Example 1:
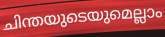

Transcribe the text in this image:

ചിന്തയുടെയുമെല്ലാം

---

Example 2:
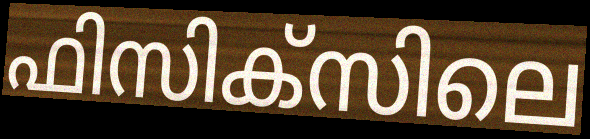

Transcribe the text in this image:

ഫിസിക്സിലെ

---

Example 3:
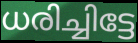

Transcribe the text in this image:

ധരിച്ചിട്ടേ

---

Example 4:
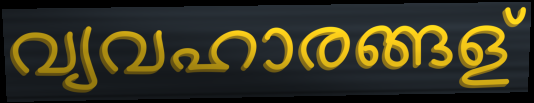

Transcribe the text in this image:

വ്യവഹാരങ്ങള്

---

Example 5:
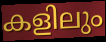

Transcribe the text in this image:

കളിലും